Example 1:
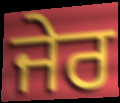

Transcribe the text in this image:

ਜੇਰ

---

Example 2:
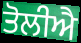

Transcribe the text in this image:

ਤੋਲੀਐ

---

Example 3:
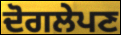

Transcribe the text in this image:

ਦੋਗਲੇਪਣ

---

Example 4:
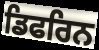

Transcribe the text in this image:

ਡਿਫਰਿਨ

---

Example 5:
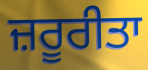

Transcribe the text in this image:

ਜ਼ਰੂਰੀਤਾ